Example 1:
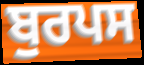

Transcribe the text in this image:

ਬੁਰਪਸ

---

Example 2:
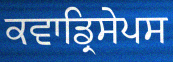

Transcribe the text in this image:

ਕਵਾਡ੍ਰਿਸੇਪਸ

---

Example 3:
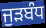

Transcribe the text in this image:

ਜੁੜਬੰਧ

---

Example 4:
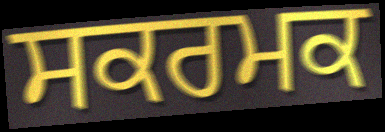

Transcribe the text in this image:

ਸਕਰਮਕ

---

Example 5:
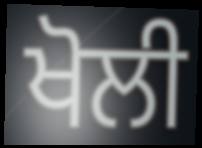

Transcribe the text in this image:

ਖੋਲੀ